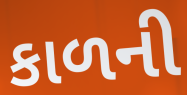
કાળની